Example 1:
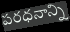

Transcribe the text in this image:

పరధనాన్ని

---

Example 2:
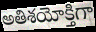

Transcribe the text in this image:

అతిశయోక్తిగా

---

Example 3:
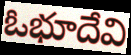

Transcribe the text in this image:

ఓభూదేవి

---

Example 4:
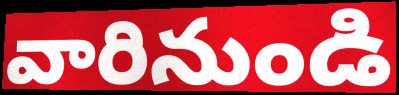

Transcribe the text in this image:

వారినుండి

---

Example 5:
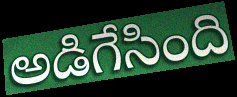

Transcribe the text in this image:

అడిగేసింది